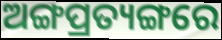
ଅଙ୍ଗପ୍ରତ୍ୟଙ୍ଗରେ